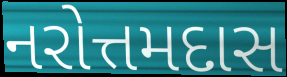
નરોત્તમદાસ